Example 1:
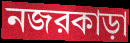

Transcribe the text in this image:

নজরকাড়া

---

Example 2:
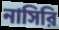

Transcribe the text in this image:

নাসিরি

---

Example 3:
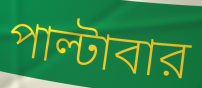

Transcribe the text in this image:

পাল্টাবার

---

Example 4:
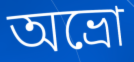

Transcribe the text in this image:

অভ্রো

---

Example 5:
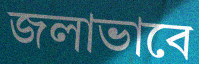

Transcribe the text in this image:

জলাভাবে